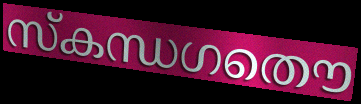
സ്കന്ധഗതൌ